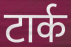
टार्क